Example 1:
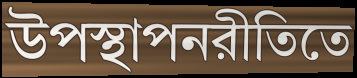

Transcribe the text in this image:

উপস্থাপনরীতিতে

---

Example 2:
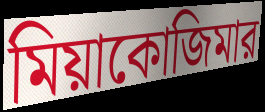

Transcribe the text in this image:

মিয়াকোজিমার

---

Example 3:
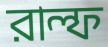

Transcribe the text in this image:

রাল্ফ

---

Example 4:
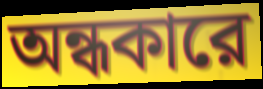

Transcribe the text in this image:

অন্ধকারে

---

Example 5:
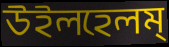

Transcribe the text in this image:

উইলহেলম্